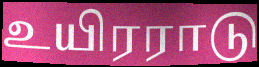
உயிரராடு